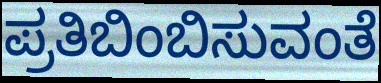
ಪ್ರತಿಬಿಂಬಿಸುವಂತೆ